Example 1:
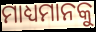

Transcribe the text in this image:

ମାଧ୍ୟମାନକୁ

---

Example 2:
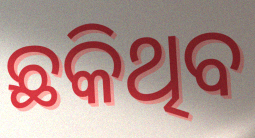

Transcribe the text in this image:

ଛକିଥିବ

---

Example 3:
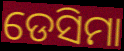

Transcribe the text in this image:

ଡେସିମା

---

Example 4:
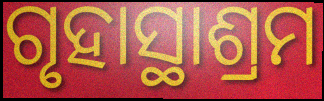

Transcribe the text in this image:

ଗୃହାସ୍ଥାଶ୍ରମ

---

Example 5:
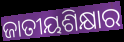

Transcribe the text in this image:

ଜାତୀୟଶିକ୍ଷାର